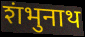
शंभुनाथ